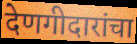
देणगीदारांचा